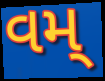
વમ્